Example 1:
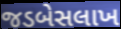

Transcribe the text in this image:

જડબેસલાખ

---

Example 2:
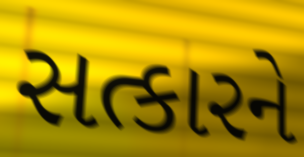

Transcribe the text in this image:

સત્કારને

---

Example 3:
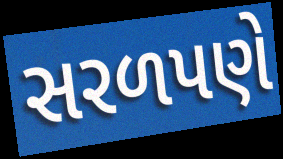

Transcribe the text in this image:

સરળપણે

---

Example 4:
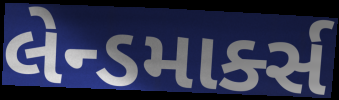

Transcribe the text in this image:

લેન્ડમાર્ક્સ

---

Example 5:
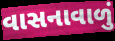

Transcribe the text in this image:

વાસનાવાળું